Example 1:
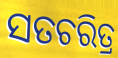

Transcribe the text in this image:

ସତଚରିତ୍ର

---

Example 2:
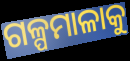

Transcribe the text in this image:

ଗଳ୍ପମାଳାକୁ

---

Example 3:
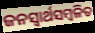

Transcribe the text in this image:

ଜନସ୍ବାର୍ଥସମ୍ବଳିତ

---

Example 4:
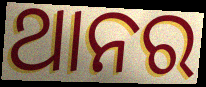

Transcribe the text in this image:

ଥାନର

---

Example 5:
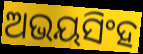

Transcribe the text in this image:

ଅଭୟସିଂହ